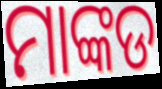
ମାଙ୍କଡ